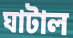
ঘাটাল